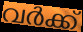
വർക്ക്